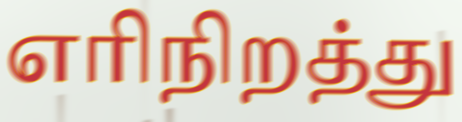
எரிநிறத்து